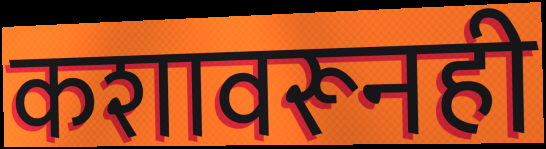
कशावरूनही